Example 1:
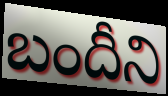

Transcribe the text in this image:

బందీని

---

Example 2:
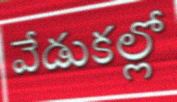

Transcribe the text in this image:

వేడుకల్లో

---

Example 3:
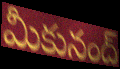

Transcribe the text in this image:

మీకునంద్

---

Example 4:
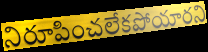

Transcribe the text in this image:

నిరూపించలేకపోయారని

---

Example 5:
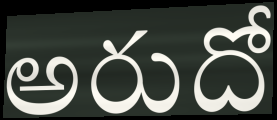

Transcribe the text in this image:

అరుదో